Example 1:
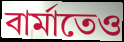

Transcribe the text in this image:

বার্মাতেও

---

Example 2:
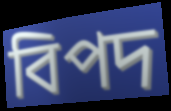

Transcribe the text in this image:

বিপদ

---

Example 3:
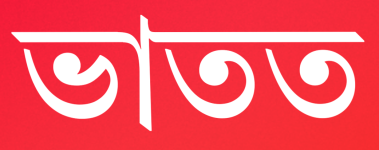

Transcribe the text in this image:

ভাতত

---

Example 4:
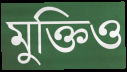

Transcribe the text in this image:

মুক্তিও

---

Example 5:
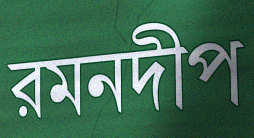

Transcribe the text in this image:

রমনদীপ